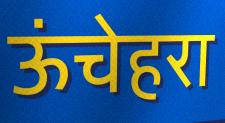
ऊंचेहरा